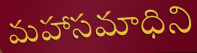
మహాసమాధిని